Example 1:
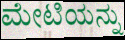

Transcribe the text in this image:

ಮೇಟಿಯನ್ನು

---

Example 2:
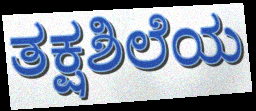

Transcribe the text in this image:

ತಕ್ಷಶಿಲೆಯ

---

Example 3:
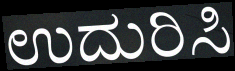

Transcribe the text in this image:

ಉದುರಿಸಿ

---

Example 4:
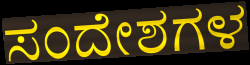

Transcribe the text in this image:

ಸಂದೇಶಗಳ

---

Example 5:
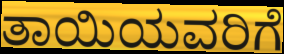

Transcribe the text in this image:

ತಾಯಿಯವರಿಗೆ